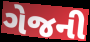
ગેજની